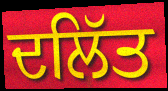
ਦਲਿੱਤ